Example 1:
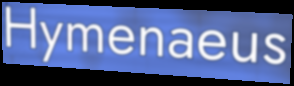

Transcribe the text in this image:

Hymenaeus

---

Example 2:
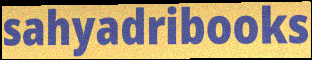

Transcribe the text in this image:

sahyadribooks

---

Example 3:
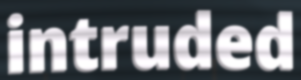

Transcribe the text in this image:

intruded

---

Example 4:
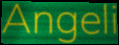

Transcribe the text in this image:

Angeli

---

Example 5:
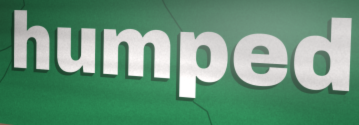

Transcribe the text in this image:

humped